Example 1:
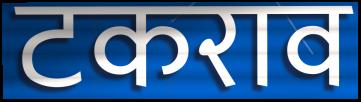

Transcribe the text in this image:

टकराव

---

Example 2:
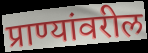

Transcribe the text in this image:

प्राण्यांवरील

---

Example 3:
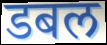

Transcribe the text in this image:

डबल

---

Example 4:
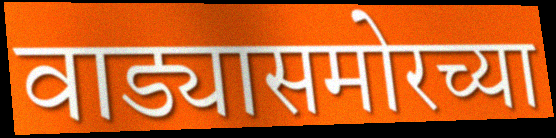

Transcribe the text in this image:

वाड्यासमोरच्या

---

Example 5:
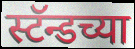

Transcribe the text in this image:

स्टॅन्डच्या